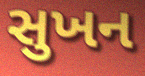
સુખન